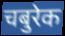
चबुरेक